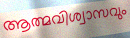
ആത്മവിശ്വാസവും